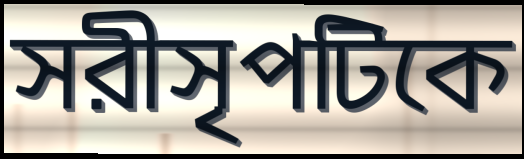
সরীসৃপটিকে